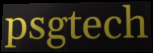
psgtech